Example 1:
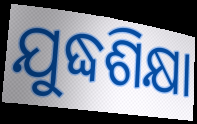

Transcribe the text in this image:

ଯୁଦ୍ଧଶିକ୍ଷା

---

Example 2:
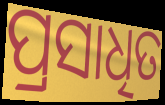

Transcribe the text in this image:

ପ୍ରସାଧିତ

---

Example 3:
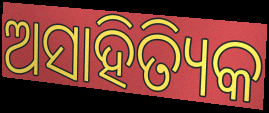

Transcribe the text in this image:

ଅସାହିତ୍ୟିକ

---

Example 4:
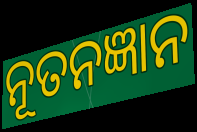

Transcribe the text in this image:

ନୂତନଜ୍ଞାନ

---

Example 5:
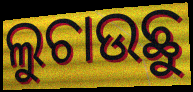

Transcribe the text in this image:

ଲୁଚାଉଛୁ